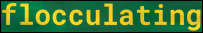
flocculating